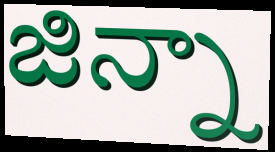
జిన్నా